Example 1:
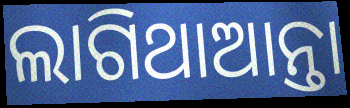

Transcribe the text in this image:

ଲାଗିଥାଆନ୍ତା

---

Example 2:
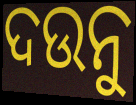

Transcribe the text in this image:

ଦଉନୁ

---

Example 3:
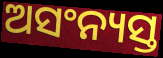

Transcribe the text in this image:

ଅସଂନ୍ୟସ୍ତ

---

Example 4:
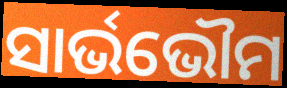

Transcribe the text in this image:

ସାର୍ଭଭୌମ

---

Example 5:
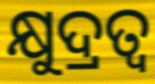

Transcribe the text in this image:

କ୍ଷୁଦ୍ରତ୍ୱ